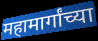
महामार्गांच्या